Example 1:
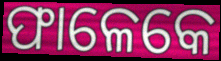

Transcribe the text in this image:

ଫାଳେକେ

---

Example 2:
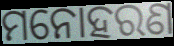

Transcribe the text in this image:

ମନୋହରଣ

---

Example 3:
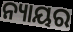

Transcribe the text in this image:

ନ୍ୟାୟର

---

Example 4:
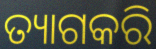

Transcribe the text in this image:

ତ୍ୟାଗକରି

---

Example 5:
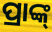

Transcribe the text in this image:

ପ୍ରାଙ୍କ୍